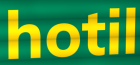
hotil